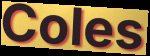
Coles